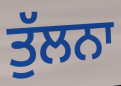
ਤੁੱਲਨਾ